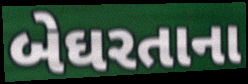
બેઘરતાના